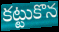
కట్టుకొన